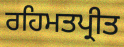
ਰਹਿਮਤਪ੍ਰੀਤ